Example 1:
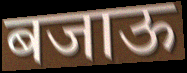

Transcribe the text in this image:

बजाऊ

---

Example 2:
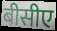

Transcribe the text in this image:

बीसीए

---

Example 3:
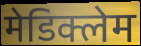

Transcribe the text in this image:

मेडिक्लेम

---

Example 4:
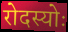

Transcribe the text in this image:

रोदस्योः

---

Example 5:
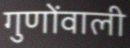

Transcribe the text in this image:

गुणोंवाली